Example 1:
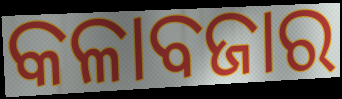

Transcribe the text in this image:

କଳାବଜାର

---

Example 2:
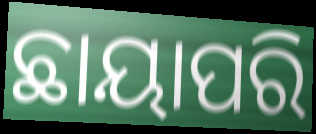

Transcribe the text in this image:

ଛାୟାପରି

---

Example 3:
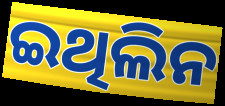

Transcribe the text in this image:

ଇଥିଲିନ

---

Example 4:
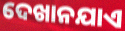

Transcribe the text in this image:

ଦେଖାନଯାଏ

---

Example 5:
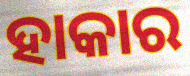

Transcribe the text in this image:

ହାକାର